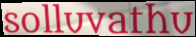
solluvathu